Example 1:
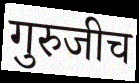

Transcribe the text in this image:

गुरुजीच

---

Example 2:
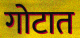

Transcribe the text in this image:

गोटात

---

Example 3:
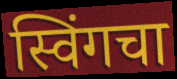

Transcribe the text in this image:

स्विंगचा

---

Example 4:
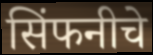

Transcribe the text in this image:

सिंफनीचे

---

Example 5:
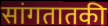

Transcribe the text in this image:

सांगतातकी